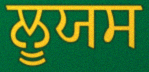
ਲੂਯਸ